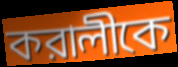
করালীকে